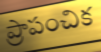
ప్రాపంచిక